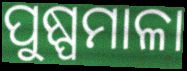
ପୁଷ୍ପମାଳା